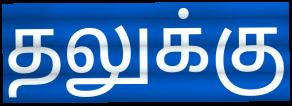
தலுக்கு